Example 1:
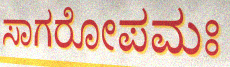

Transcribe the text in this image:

ಸಾಗರೋಪಮಃ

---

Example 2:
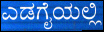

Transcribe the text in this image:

ಎಡಗೈಯಲ್ಲಿ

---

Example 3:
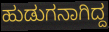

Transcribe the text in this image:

ಹುಡುಗನಾಗಿದ್ದ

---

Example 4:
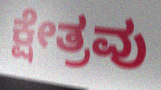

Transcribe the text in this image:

ಕ್ಷೇತ್ರವು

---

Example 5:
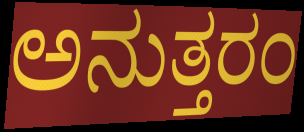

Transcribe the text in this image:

ಅನುತ್ತರಂ